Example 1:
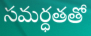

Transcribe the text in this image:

సమర్ధతతో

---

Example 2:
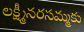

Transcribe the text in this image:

లక్ష్మీనరసమ్మకు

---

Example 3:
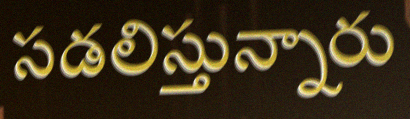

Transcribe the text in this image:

సడలిస్తున్నారు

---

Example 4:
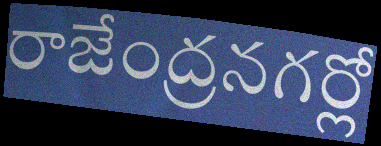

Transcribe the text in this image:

రాజేంద్రనగర్లో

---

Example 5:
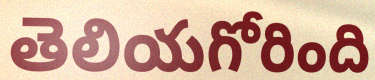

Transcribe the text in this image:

తెలియగోరింది